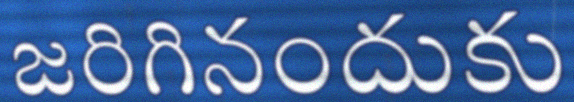
జరిగినందుకు